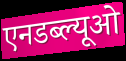
एनडब्ल्यूओ